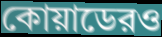
কোয়াডেরও